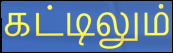
கட்டிலும்